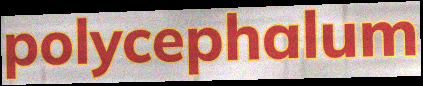
polycephalum